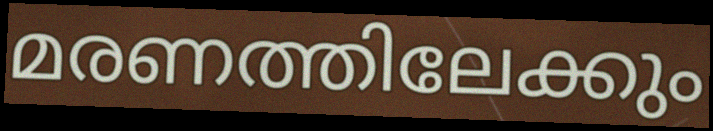
മരണത്തിലേക്കും